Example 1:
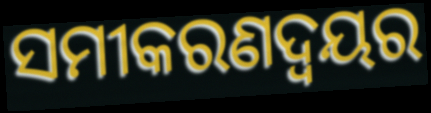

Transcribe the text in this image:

ସମୀକରଣଦ୍ଵୟର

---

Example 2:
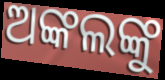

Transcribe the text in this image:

ଅଙ୍କଲଙ୍କୁ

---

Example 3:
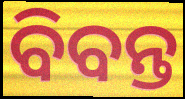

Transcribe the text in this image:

ବିବନ୍ତ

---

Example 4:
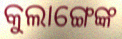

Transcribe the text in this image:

କୁଲାଙ୍ଗେଙ୍କ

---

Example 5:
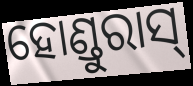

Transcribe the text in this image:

ହୋଣ୍ଡୁରାସ୍